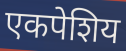
एकपेशिय